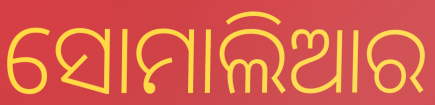
ସୋମାଲିଆର